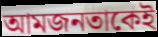
আমজনতাকেই